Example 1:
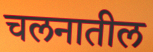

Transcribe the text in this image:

चलनातील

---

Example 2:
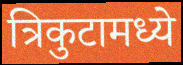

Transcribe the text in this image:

त्रिकुटामध्ये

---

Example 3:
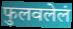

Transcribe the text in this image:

फुलवलेलं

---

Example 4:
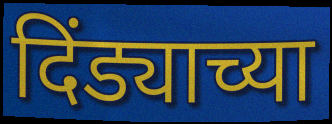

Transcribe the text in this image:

दिंड्याच्या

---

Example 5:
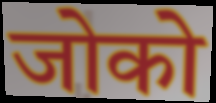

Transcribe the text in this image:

जोको